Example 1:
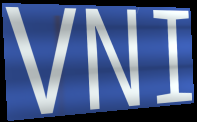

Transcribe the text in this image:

VNI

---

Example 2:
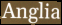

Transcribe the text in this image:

Anglia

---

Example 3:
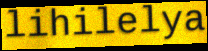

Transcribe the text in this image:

lihilelya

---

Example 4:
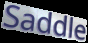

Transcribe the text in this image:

Saddle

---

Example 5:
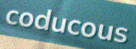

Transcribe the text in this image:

coducous